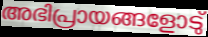
അഭിപ്രായങ്ങളോടു്